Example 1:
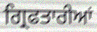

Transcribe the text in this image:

ਗ੍ਰਿਫਤਾਰੀਆਂ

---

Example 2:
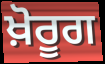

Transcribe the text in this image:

ਖ਼ੋਰੂਗ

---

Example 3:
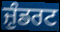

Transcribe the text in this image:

ਜ਼ੁੰਡਰਟ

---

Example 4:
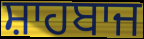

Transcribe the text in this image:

ਸ਼ਾਹਬਾਜ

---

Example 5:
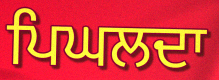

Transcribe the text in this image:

ਪਿਘਲਦਾ